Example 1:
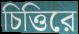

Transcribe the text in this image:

চিত্তিরে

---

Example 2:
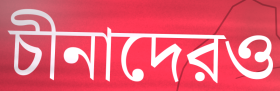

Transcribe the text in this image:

চীনাদেরও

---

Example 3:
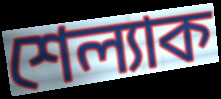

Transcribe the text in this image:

শেল্যাক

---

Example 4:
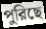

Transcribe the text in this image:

পুরিছে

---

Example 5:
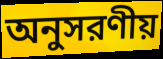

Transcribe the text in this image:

অনুসরণীয়